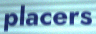
placers